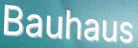
Bauhaus